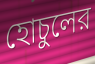
হোচুলের